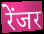
रेंजर